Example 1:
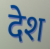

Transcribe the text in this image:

देश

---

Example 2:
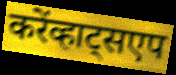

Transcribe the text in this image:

करेंव्हाट्सएप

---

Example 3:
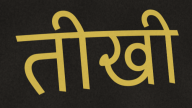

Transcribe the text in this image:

तीखी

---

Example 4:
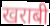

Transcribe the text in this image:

खराबी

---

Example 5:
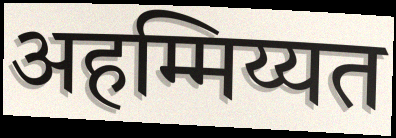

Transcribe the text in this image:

अहम्मिय्यत